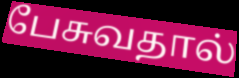
பேசுவதால்